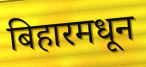
बिहारमधून